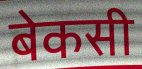
बेकसी